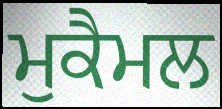
ਮੁਕੈਮਲ